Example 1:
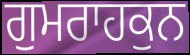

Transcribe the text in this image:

ਗੁਮਰਾਹਕੁਨ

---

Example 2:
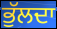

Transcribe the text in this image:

ਭੁੱਲਦਾ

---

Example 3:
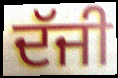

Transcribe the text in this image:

ਦੱਜੀ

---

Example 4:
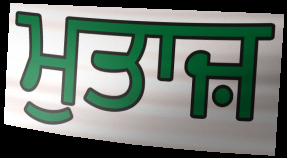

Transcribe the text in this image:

ਮੁਤਾਜ਼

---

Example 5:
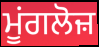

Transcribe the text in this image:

ਮੂਂਗਲੋਜ਼